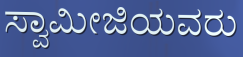
ಸ್ವಾಮೀಜಿಯವರು